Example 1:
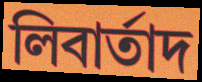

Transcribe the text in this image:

লিবার্তাদ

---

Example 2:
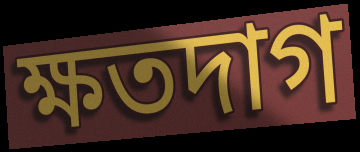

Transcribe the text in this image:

ক্ষতদাগ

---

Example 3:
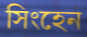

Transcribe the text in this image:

সিংহেন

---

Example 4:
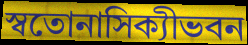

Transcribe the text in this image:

স্বতোনাসিক্যীভবন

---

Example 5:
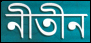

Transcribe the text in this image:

নীতীন